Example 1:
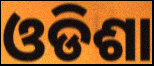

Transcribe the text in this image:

ଓଡିଶା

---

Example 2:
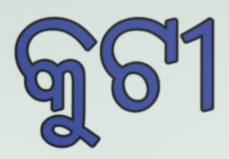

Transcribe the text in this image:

କୁଟୀ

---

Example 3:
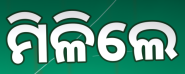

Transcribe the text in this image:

ମିଳିଲେ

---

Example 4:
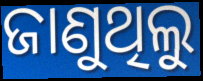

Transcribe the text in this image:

ଜାଣୁଥିଲୁ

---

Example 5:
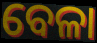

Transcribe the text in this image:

ବେଳା